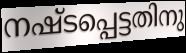
നഷ്ടപ്പെട്ടതിനു